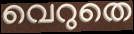
വെറുതെ